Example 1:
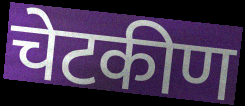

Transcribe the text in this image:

चेटकीण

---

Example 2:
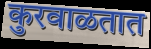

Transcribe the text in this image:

कुरवाळतात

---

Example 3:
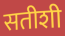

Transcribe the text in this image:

सतीशी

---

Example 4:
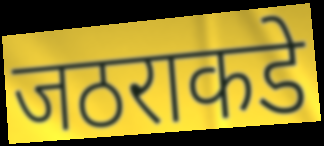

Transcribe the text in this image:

जठराकडे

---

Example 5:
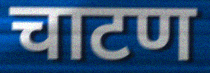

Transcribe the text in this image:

चाटण